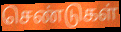
செண்டுகள்